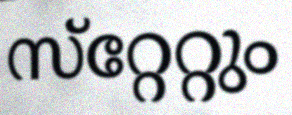
സ്‌റ്റേറ്റും